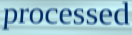
processed